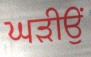
ਘੜੀਉਂ